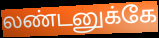
லண்டனுக்கே